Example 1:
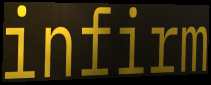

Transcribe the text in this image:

infirm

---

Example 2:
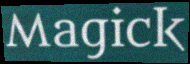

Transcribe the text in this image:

Magick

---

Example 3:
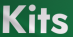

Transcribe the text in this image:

Kits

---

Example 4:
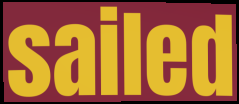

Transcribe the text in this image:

sailed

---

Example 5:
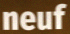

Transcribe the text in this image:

neuf